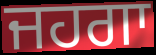
ਜਹਗਾ